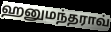
ஹனுமந்தராவ்